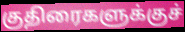
குதிரைகளுக்குச்